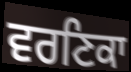
ਵਰਣਿਕਾ